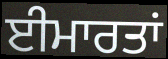
ਈਮਾਰਤਾਂ